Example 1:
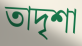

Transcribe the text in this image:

তাদৃশা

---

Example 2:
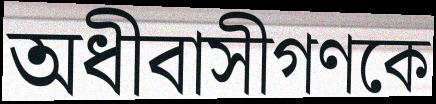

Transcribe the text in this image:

অধীবাসীগণকে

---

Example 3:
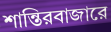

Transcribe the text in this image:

শান্তিরবাজারে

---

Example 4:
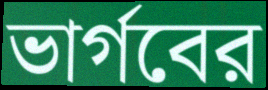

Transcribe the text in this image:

ভার্গবের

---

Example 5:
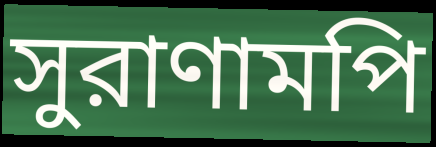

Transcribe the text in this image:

সুরাণামপি